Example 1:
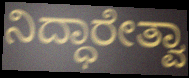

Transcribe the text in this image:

ನಿದ್ಧಾರೇತ್ವಾ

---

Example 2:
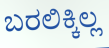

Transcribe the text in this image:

ಬರಲಿಕ್ಕಿಲ್ಲ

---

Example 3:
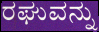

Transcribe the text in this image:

ರಘುವನ್ನು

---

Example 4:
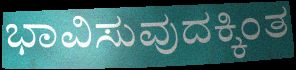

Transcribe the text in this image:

ಭಾವಿಸುವುದಕ್ಕಿಂತ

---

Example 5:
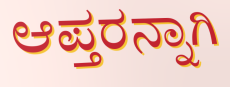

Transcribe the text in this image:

ಆಪ್ತರನ್ನಾಗಿ